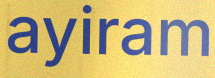
ayiram